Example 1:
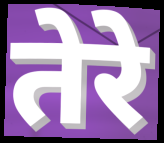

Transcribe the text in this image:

तेरे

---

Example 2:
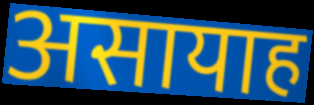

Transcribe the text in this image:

असायाह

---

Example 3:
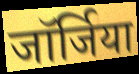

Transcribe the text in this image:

जॉर्जिया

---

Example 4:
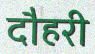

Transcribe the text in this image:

दौहरी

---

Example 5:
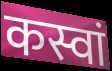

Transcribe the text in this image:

कस्‍वां